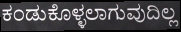
ಕಂಡುಕೊಳ್ಳಲಾಗುವುದಿಲ್ಲ